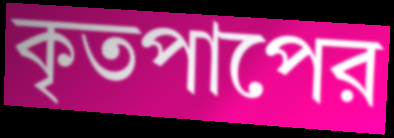
কৃতপাপের